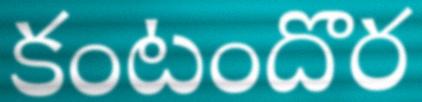
కంటందొర